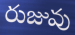
రుజువు